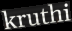
kruthi